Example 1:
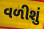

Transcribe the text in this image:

વળીશું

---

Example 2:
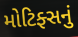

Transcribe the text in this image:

મોટિફ્સનું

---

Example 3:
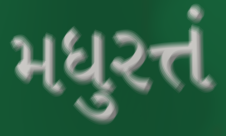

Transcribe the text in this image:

મધુરત્તં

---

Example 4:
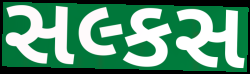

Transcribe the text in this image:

સલ્કસ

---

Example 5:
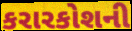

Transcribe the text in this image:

કરારકોશની